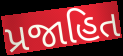
પ્રજાહિત